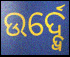
ଉର୍ଦ୍ଦ୍ୱେ